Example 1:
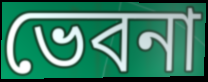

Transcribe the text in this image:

ভেবনা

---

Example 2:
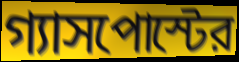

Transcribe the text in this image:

গ্যাসপোস্টের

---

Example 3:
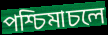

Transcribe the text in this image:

পশ্চিমাচলে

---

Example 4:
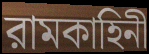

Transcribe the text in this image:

রামকাহিনী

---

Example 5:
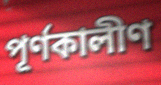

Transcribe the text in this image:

পূর্ণকালীণ